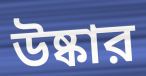
উষ্কার